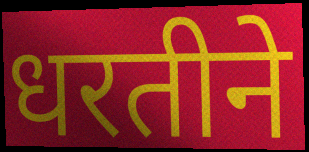
धरतीने